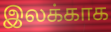
இலக்காக